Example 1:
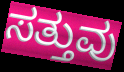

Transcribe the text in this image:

ಸತ್ತುವು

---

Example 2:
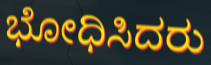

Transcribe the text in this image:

ಭೋಧಿಸಿದರು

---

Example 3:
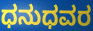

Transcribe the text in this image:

ಧನುಧವರ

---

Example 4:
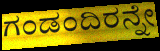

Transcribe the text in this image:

ಗಂಡಂದಿರನ್ನೇ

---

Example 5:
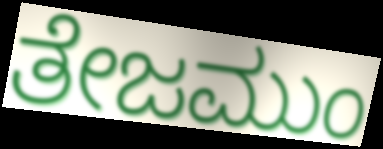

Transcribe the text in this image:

ತೇಜಮುಂ